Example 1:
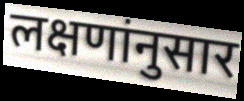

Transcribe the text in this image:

लक्षणांनुसार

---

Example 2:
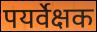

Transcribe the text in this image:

पयर्वेक्षक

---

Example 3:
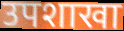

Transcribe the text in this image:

उपशाखा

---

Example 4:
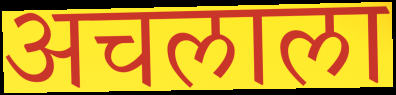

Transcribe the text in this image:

अचलाला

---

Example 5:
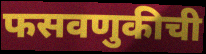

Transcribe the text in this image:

फसवणुकीची